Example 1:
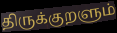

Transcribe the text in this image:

திருக்குறளும்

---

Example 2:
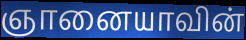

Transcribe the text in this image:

ஞானையாவின்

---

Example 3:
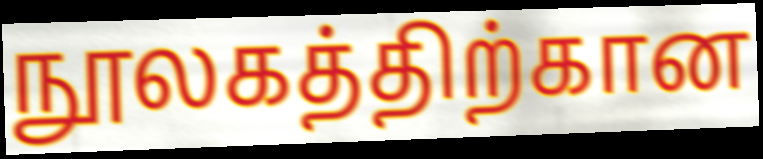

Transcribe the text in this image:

நூலகத்திற்கான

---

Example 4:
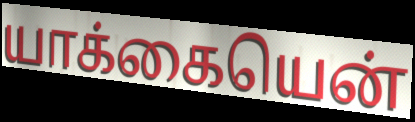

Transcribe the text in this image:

யாக்கையென்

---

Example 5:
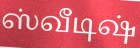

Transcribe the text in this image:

ஸ்வீடிஷ்